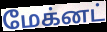
மேக்னட்